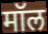
मॉल